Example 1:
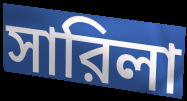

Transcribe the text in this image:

সারিলা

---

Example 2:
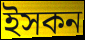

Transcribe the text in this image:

ইসকন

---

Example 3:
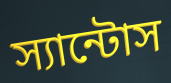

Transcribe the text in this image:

স্যান্টোস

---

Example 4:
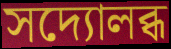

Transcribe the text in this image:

সদ্যোলব্ধ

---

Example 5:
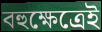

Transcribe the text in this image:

বহুক্ষেত্রেই